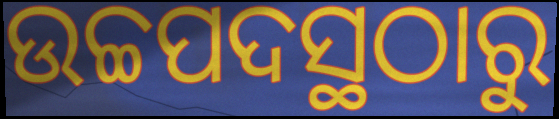
ଉଚ୍ଚପଦସ୍ଥଠାରୁ